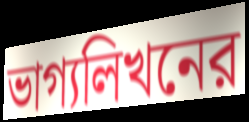
ভাগ্যলিখনের